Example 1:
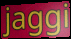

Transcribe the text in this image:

jaggi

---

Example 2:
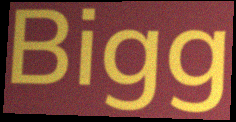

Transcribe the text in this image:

Bigg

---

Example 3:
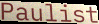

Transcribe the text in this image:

Paulist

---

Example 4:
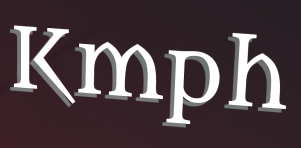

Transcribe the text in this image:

Kmph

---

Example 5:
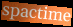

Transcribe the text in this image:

spactime